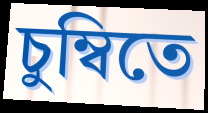
চুম্বিতে